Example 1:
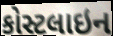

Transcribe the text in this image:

કોસ્ટલાઇન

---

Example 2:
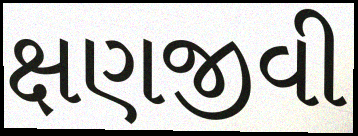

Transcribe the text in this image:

ક્ષણજીવી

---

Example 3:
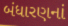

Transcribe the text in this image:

બંધારણનાં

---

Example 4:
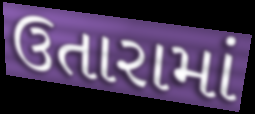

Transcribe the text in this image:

ઉતારામાં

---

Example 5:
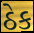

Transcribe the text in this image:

ઠેક